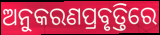
ଅନୁକରଣପ୍ରବୃତ୍ତିରେ